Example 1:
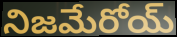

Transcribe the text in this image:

నిజమేరోయ్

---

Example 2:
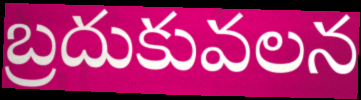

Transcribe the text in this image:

బ్రదుకువలన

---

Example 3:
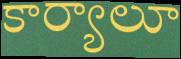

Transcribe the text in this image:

కార్యాలూ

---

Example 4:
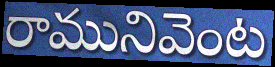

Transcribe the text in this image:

రామునివెంట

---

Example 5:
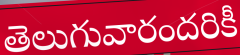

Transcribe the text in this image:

తెలుగువారందరికీ